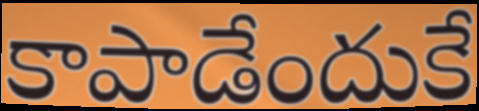
కాపాడేందుకే